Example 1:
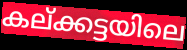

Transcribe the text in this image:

കല്ക്കട്ടയിലെ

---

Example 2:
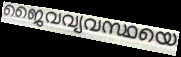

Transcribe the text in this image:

ജൈവവ്യവസ്ഥയെ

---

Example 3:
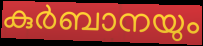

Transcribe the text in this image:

കുർബാനയും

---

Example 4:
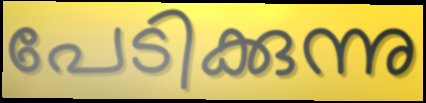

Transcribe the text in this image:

പേടിക്കുന്നു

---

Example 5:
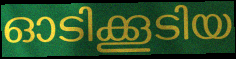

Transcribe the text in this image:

ഓടിക്കൂടിയ